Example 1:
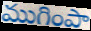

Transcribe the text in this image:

ముగింపా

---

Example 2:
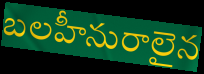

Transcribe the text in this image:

బలహీనురాలైన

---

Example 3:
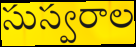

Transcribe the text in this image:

సుస్వరాల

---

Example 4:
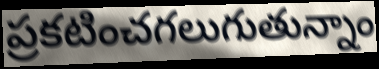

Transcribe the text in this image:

ప్రకటించగలుగుతున్నాం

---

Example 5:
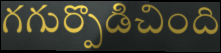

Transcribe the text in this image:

గగుర్పొడిచింది